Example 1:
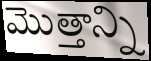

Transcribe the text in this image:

మొత్తాన్ని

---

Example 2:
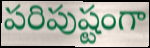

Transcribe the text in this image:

పరిపుష్టంగా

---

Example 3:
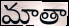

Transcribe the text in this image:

మాతా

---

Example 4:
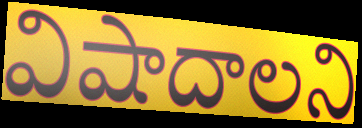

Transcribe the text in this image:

విషాదాలని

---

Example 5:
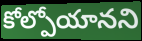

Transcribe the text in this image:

కోల్పోయానని